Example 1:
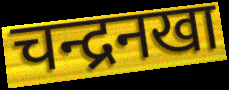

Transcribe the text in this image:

चन्द्रनखा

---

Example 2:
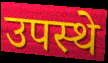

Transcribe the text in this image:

उपस्थे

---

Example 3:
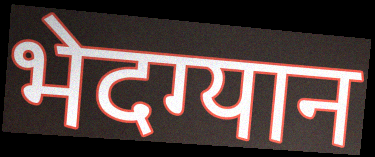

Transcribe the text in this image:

भेदग्यान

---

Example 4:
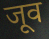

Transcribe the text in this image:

जूव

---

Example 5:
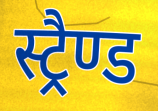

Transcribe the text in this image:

स्ट्रैण्ड